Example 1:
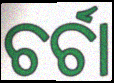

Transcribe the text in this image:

ଚର୍ଚା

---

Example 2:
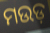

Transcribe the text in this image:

ମଉଡ଼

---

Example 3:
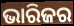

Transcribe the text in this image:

ଭାରିଜର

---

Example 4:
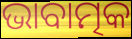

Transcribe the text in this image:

ଭାବାତ୍ମକ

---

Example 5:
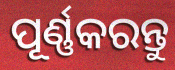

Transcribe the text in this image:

ପୂର୍ଣ୍ଣକରନ୍ତୁ